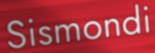
Sismondi